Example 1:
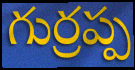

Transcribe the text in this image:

గుర్రప్ప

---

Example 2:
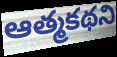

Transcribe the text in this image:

ఆత్మకథని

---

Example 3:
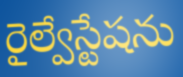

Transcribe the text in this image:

రైల్వేస్టేషను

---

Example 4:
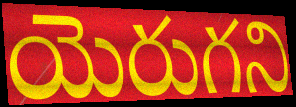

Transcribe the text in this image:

యెరుగని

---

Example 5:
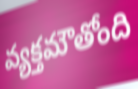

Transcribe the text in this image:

వ్యక్తమౌతోంది